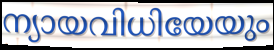
ന്യായവിധിയേയും